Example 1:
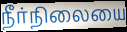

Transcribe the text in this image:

நீர்நிலையை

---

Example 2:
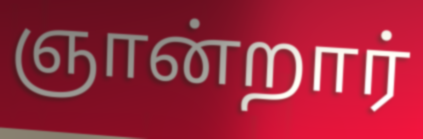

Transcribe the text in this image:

ஞான்றார்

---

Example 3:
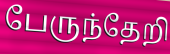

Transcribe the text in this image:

பேருந்தேறி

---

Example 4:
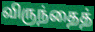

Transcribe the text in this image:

விருந்தைத்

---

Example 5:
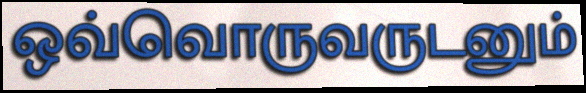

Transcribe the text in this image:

ஒவ்வொருவருடனும்